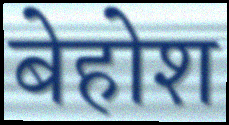
बेहोश